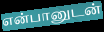
என்பானுடன்